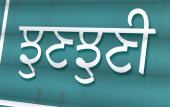
ਝੁਣਝੁਣੀ